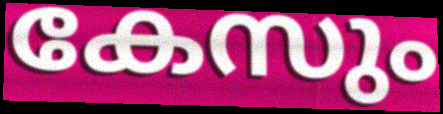
കേസും